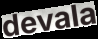
devala